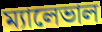
ম্যালেভাল